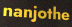
nanjothe